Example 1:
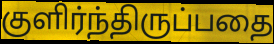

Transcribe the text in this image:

குளிர்ந்திருப்பதை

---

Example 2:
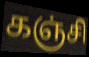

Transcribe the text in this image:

கஞ்சி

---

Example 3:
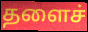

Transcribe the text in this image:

தளைச்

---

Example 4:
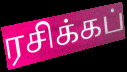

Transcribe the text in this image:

ரசிக்கப்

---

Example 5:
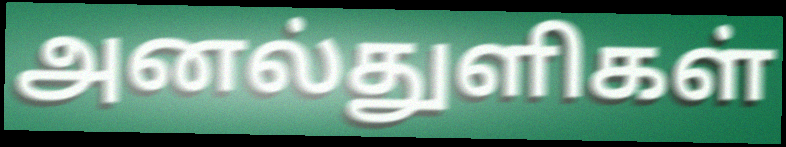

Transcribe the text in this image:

அனல்துளிகள்